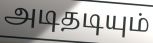
அடிதடியும்